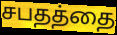
சபதத்தை